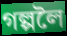
গল্পলৈ